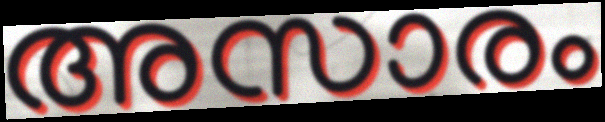
അസാരം